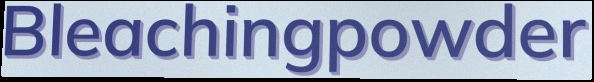
Bleachingpowder